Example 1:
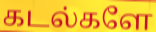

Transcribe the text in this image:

கடல்களே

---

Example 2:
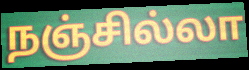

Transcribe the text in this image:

நஞ்சில்லா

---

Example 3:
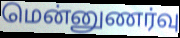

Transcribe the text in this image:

மென்னுணர்வு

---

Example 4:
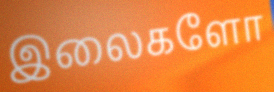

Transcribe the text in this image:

இலைகளோ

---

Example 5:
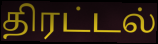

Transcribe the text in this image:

திரட்டல்